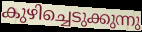
കുഴിച്ചെടുക്കുന്നു